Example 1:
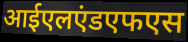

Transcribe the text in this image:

आईएलएंडएफएस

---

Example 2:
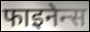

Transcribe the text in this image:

फाइनेन्स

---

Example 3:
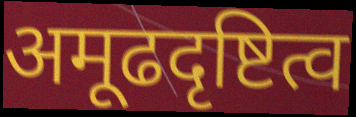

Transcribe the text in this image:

अमूढदृष्टित्व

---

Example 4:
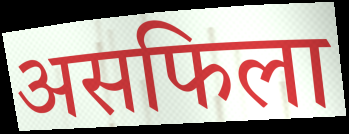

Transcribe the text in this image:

असफिला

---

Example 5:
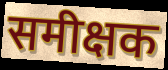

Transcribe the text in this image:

समीक्षक